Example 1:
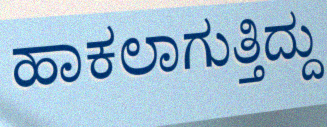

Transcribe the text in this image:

ಹಾಕಲಾಗುತ್ತಿದ್ದು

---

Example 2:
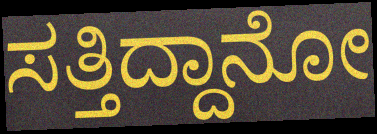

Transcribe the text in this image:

ಸತ್ತಿದ್ದಾನೋ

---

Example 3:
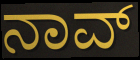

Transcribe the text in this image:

ನಾವ್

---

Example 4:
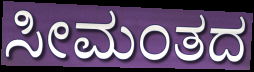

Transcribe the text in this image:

ಸೀಮಂತದ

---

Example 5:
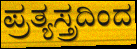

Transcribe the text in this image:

ಪ್ರತ್ಯಸ್ತ್ರದಿಂದ